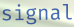
signal